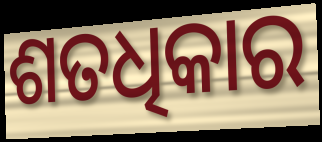
ଶତଧିକାର